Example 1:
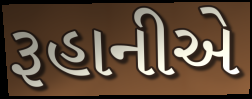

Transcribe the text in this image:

રૂહાનીએ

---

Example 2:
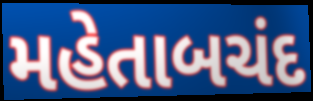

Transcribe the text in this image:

મહેતાબચંદ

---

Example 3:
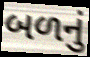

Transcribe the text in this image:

બળનું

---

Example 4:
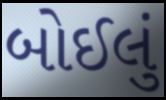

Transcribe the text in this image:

બોઈલું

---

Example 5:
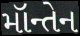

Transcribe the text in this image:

મૉન્તેન